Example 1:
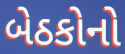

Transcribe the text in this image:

બેઠકોનો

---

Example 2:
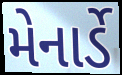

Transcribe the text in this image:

મેનાર્ડે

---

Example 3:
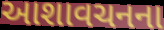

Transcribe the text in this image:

આશાવચનના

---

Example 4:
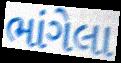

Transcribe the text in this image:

ભાંગેલા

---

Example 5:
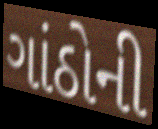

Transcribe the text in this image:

ગાંઠોની